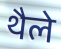
थैले